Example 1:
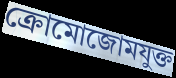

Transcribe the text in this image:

ক্রোমোজোমযুক্ত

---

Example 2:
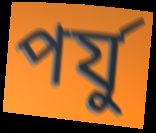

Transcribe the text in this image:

পর্যু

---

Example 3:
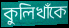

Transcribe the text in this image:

কুলিখাঁকে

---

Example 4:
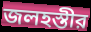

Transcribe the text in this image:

জলহস্তীর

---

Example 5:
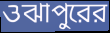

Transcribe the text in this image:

ওঝাপুরের